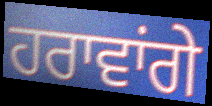
ਹਰਾਵਾਂਗੇ